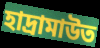
হাদ্রামাউত